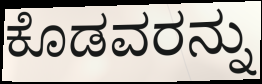
ಕೊಡವರನ್ನು